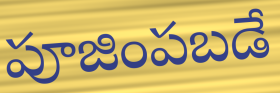
పూజింపబడే